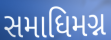
સમાધિમગ્ન